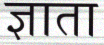
ज्ञाता